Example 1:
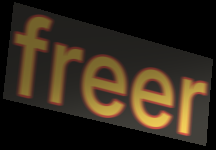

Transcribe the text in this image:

freer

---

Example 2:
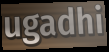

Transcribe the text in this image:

ugadhi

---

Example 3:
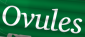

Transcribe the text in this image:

Ovules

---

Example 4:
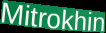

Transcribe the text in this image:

Mitrokhin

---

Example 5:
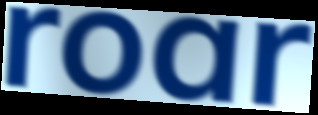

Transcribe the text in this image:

roar